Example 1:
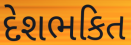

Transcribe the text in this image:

દેશભકિત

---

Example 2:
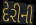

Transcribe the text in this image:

દેરીની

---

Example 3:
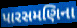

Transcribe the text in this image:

પારસમણિના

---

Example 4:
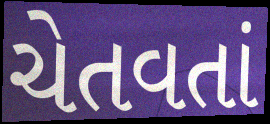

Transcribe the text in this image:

ચેતવતાં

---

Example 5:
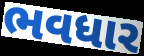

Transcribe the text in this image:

ભવધાર